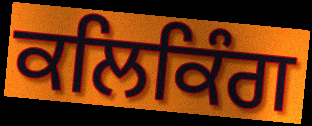
ਕਲਿਕਿੰਗ